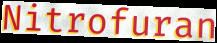
Nitrofuran